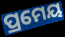
ପ୍ରମେୟ